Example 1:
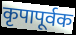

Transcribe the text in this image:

कृपापूर्वक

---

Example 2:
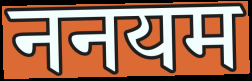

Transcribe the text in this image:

ननयम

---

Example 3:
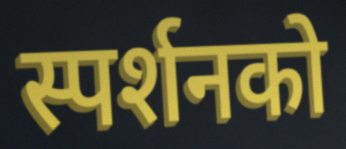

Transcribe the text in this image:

स्पर्शनको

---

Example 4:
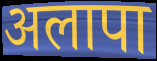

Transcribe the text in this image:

अलापा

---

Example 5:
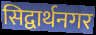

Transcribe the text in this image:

सिद्वार्थनगर